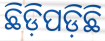
ଛିଡ଼ିପଡ଼ିଛି